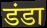
डंडा